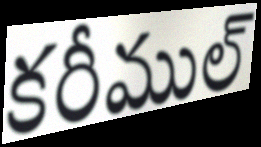
కరీముల్